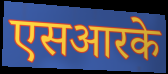
एसआरके